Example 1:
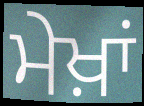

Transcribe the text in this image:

ਮੇਖ਼ਾਂ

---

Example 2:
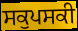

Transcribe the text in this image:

ਸਕੁਪਸਕੀ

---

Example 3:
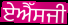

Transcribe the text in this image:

ਏਐੱਸਜੀ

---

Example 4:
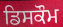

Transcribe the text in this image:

ਡਿਸਕੌਮ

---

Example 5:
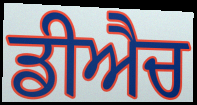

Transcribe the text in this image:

ਡੀਐਚ